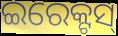
ଇରେକ୍ଟସ୍